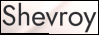
Shevroy